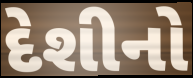
દેશીનો